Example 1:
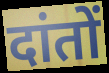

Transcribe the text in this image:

दांतों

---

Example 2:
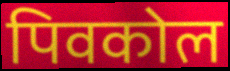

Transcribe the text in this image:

पिवकोल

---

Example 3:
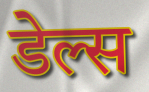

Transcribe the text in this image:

डेल्स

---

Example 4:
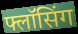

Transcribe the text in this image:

फ्लॉसिंग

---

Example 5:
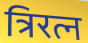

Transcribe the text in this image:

त्रिरत्न